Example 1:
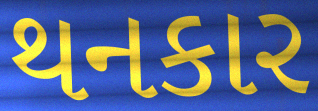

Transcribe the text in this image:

થનકાર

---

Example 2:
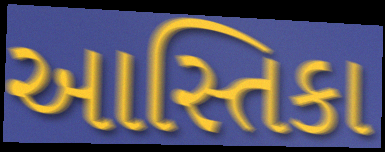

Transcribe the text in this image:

આસ્તિકા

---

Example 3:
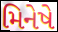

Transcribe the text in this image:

મિનેષે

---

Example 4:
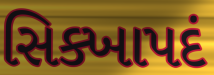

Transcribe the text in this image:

સિક્ખાપદં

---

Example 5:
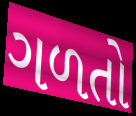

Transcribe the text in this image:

ગળતો